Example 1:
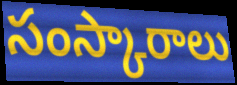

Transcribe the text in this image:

సంస్కారాలు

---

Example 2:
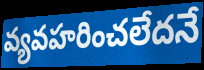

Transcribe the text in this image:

వ్యవహరించలేదనే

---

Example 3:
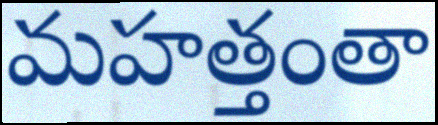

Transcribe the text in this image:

మహత్తంతా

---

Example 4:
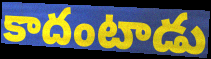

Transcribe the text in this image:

కాదంటాడు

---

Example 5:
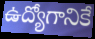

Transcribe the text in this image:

ఉద్యోగానికే